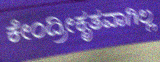
ಕೇಂದ್ರೀಕೃತವಾಗಿಲ್ಲ